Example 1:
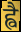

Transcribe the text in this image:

ह्वै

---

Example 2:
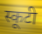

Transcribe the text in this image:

स्कूटी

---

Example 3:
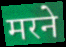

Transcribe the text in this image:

मरने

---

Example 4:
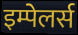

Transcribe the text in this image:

इम्पेलर्स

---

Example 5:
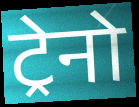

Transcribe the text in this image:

ट्रेनो